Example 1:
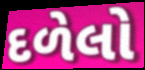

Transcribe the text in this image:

દળેલો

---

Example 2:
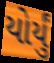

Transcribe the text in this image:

યોર્યું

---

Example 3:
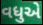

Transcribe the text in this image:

વધુએ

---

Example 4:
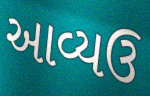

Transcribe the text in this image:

આવ્યઉ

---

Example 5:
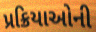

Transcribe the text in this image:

પ્રક્રિયાઓની